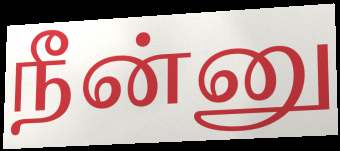
நீன்னு